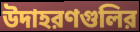
উদাহরণগুলির